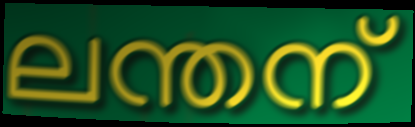
ലന്തന്